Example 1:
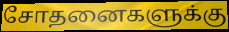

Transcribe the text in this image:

சோதனைகளுக்கு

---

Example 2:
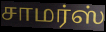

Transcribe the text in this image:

சாமர்ஸ்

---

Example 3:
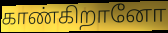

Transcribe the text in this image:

காண்கிறானோ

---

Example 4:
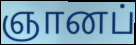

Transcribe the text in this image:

ஞானப்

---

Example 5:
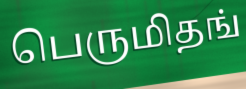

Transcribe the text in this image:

பெருமிதங்